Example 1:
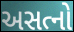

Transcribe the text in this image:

અસત્નો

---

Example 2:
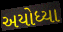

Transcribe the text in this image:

અયોધ્યા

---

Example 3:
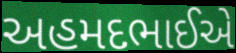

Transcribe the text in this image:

અહમદભાઈએ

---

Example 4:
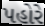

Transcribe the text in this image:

પહોરે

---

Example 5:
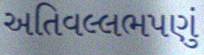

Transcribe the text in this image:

અતિવલ્લભપણું